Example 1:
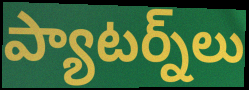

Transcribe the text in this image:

ప్యాటర్న్‌లు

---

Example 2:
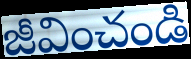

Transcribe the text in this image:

జీవించండి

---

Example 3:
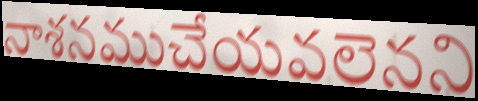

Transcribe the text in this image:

నాశనముచేయవలెనని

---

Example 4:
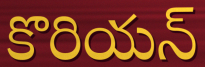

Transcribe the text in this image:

కొరియన్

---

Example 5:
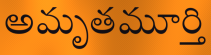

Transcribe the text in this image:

అమృతమూర్తి